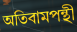
অতিবামপন্থী